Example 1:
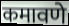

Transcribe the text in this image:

कमावणे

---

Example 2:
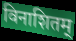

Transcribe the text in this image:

विनाशितम्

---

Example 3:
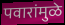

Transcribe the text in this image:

पवारांमुळे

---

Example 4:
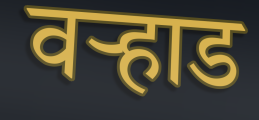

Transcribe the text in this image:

वर्‍हाड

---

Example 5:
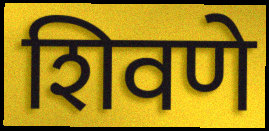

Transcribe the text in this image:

शिवणे